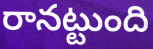
రానట్టుంది